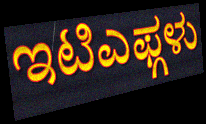
ಇಟಿಎಫ್ಗಳು